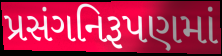
પ્રસંગનિરૂપણમાં